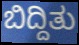
ಬಿದ್ದಿತು